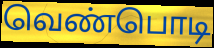
வெண்பொடி